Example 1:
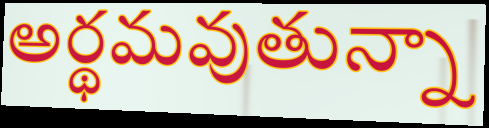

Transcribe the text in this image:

అర్థమవుతున్నా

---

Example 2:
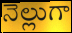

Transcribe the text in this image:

నెల్లుగా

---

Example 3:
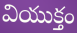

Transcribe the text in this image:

వియుక్తం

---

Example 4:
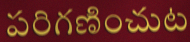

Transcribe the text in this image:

పరిగణించుట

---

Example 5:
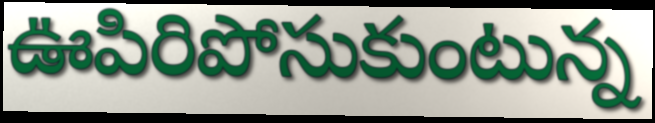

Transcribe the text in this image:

ఊపిరిపోసుకుంటున్న